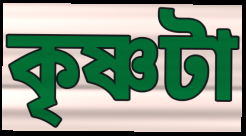
কৃষ্ণটা